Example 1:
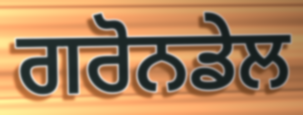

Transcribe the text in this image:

ਗਰੋਨਡੇਲ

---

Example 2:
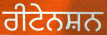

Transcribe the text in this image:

ਰੀਟੇਨਸ਼ਨ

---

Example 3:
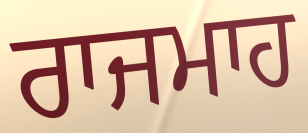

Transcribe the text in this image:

ਰਾਜਮਾਹ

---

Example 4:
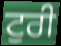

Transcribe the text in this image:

ਟੁਰੀ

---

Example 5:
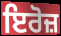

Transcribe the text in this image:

ਇਰੋਜ਼